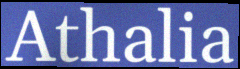
Athalia